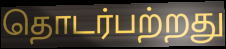
தொடர்பற்றது